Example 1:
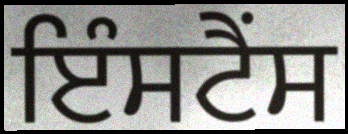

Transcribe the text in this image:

ਇੰਸਟੈਂਸ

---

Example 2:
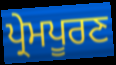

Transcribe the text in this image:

ਪ੍ਰੇਮਪੂਰਣ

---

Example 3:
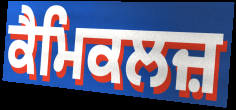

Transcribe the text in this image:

ਕੈਮਿਕਲਜ਼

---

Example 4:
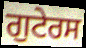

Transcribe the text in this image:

ਗੁਟੇਰਸ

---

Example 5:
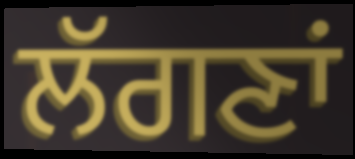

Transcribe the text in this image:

ਲੱਗਣਾਂ